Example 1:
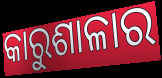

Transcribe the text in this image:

କାରୁଶାଳାର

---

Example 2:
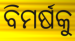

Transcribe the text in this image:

ବିମର୍ଷକୁ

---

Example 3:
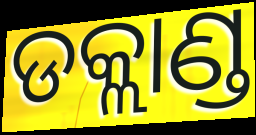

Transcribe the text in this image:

ଡକ୍ଲାଣ୍ଡ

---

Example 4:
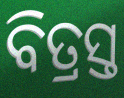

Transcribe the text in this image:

ବିତ୍ରସ୍ତ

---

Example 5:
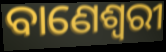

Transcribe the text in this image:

ବାଣେଶ୍ୱରୀ